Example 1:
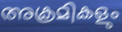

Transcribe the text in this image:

അക്രമികളും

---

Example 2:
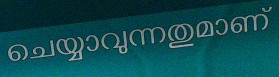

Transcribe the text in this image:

ചെയ്യാവുന്നതുമാണ്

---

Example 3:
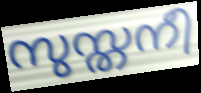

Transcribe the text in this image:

സുസ്തനീ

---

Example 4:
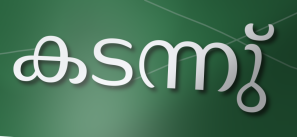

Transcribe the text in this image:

കടന്നു്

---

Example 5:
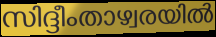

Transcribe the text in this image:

സിദ്ദീംതാഴ്വരയിൽ